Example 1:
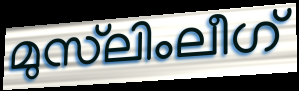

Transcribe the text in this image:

മുസ്‌ലിംലീഗ്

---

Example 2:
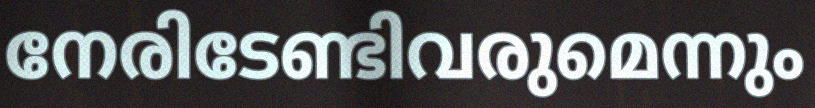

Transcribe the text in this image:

നേരിടേണ്ടിവരുമെന്നും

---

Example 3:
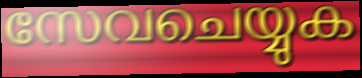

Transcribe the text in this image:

സേവചെയ്യുക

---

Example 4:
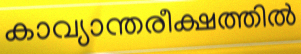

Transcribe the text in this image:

കാവ്യാന്തരീക്ഷത്തിൽ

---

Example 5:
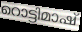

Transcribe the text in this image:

റൊട്ടിമാഷ്